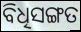
ବିଧିସଙ୍ଗତ